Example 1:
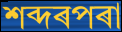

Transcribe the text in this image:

শব্দৰপৰা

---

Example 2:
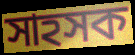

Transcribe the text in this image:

সাহসক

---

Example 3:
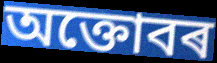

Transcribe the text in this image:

অক্তোবৰ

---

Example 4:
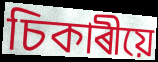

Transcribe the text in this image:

চিকাৰীয়ে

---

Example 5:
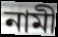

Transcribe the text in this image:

নামী